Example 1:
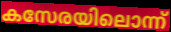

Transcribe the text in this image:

കസേരയിലൊന്ന്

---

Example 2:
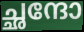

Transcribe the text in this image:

ച്ഛന്ദോ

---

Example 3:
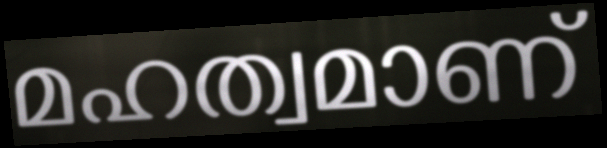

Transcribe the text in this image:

മഹത്വമാണ്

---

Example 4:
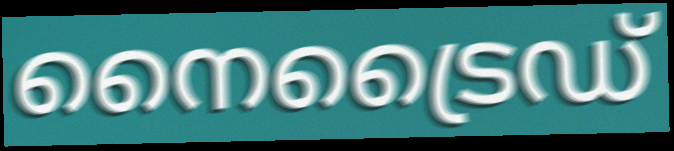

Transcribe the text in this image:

നൈട്രൈഡ്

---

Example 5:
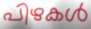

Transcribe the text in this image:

പിഴകൾ